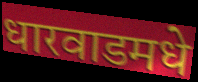
धारवाडमधे